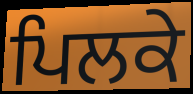
ਪਿਲਕੇ